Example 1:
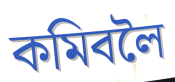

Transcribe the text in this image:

কমিবলৈ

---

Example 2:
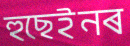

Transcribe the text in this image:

হুছেইনৰ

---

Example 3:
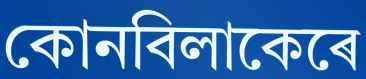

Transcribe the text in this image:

কোনবিলাকেৰে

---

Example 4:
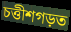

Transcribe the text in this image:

চত্তীশগড়ত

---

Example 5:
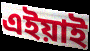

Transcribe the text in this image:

এইয়াই